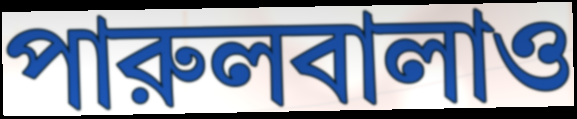
পারুলবালাও